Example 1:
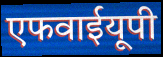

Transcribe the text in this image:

एफवाईयूपी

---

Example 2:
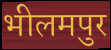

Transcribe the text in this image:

भीलमपुर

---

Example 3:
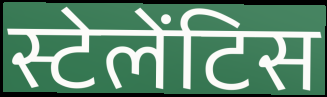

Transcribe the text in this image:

स्टेलेंटिस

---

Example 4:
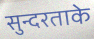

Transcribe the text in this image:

सुन्दरताके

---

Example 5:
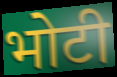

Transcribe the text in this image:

भोटी